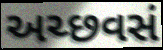
અચ્છવસં